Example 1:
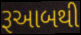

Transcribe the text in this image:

રૂઆબથી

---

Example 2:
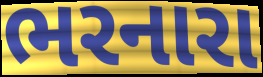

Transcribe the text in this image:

ભરનારા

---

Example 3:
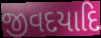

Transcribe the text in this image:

જીવદયાદિ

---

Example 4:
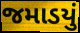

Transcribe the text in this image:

જમાડયું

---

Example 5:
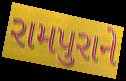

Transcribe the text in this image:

રામપુરાને